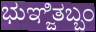
ಭುಞ್ಜಿತಬ್ಬಂ